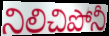
నిలిచిపోనీ